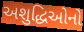
અશુદ્ધિઓનો